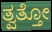
ತ್ವತ್ತೋ